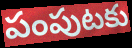
పంపుటకు